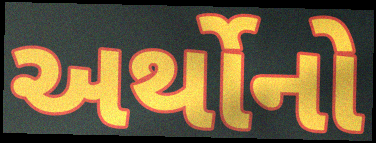
અર્થોનો